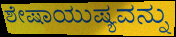
ಶೇಷಾಯುಷ್ಯವನ್ನು